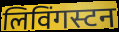
लिविंगस्टन